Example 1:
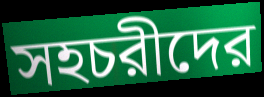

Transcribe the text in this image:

সহচরীদের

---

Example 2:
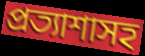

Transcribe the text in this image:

প্রত্যাশাসহ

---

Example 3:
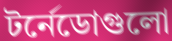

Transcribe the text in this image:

টর্নেডোগুলো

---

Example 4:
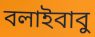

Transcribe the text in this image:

বলাইবাবু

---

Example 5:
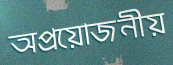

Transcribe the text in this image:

অপ্রয়োজনীয়